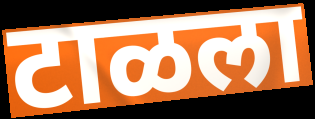
टाळला